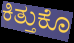
ಕಿತ್ತುಕೊ